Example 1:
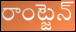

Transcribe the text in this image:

రాంట్జెన్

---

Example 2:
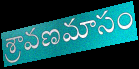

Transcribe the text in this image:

శ్రావణమాసం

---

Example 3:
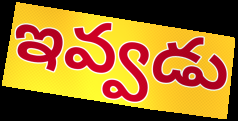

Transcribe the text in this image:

ఇవ్వడు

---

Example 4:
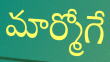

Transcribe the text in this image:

మార్మోగే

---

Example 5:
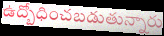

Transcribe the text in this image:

ఉద్బోధించబడుతున్నారు